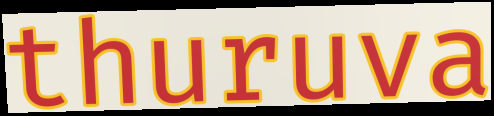
thuruva